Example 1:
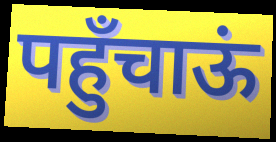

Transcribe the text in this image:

पहुँचाऊं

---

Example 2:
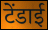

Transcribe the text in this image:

टेंडाई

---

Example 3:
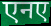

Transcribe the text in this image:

एनए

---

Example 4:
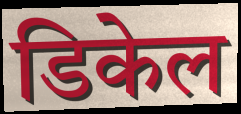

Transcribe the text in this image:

डिकेल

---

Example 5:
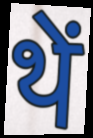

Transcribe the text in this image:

थें